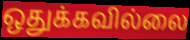
ஒதுக்கவில்லை